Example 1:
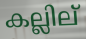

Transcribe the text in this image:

കല്ലില്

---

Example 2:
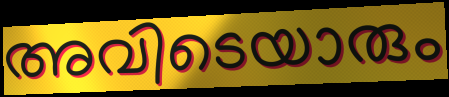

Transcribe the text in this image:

അവിടെയാരും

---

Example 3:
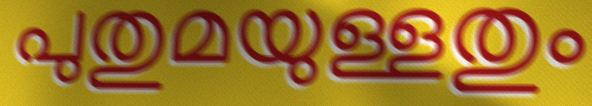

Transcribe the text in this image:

പുതുമയുള്ളതും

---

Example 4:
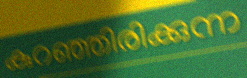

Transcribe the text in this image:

കുറഞ്ഞിരിക്കുന്ന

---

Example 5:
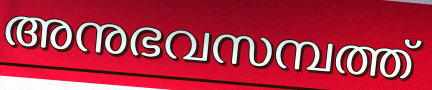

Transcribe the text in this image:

അനുഭവസമ്പത്ത്